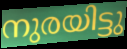
നുരയിട്ടു